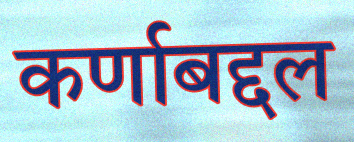
कर्णाबद्दल